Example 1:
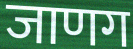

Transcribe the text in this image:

जाणग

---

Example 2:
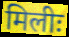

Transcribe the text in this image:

मिलीः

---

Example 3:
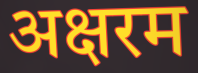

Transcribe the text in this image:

अक्षरम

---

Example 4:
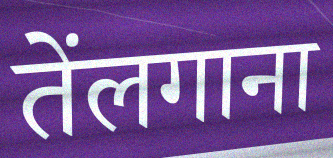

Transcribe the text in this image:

तेंलगाना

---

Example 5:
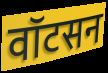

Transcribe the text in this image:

वॉटसन